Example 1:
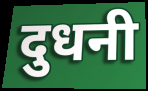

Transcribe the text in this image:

दुधनी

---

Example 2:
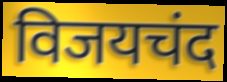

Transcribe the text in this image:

विजयचंद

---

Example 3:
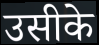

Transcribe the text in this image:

उसीके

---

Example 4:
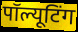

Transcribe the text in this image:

पॉल्यूटिंग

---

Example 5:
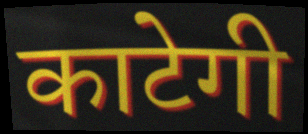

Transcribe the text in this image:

काटेगी